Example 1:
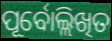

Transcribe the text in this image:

ପୂର୍ବୋଲ୍ଲିଖିତ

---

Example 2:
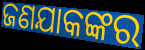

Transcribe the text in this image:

ଜଣଯାକଙ୍କର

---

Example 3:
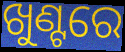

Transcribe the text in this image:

ଖୁଣ୍ଟରେ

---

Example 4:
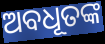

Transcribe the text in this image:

ଅବଧୂତଙ୍କ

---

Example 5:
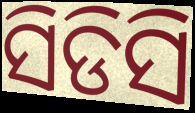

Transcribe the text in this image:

ସିଡିସି